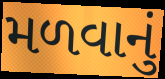
મળવાનું